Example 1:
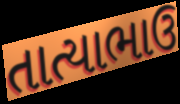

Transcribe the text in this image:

તાત્યાભાઉ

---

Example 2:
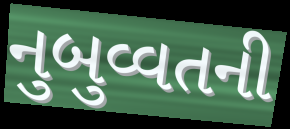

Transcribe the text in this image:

નુબુવ્વતની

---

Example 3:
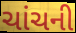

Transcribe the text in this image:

ચાંચની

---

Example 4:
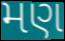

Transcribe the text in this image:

મણ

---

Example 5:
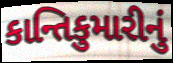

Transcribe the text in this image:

કાન્તિકુમારીનું